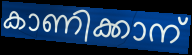
കാണിക്കാന്